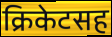
क्रिकेटसह